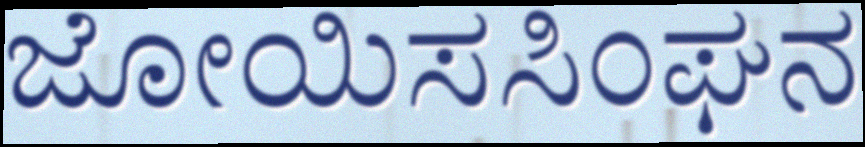
ಜೋಯಿಸಸಿಂಘನ